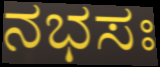
ನಭಸಃ